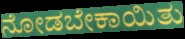
ನೋಡಬೇಕಾಯಿತು